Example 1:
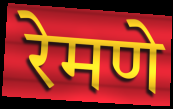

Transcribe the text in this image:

रेमणे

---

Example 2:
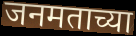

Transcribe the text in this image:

जनमताच्या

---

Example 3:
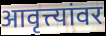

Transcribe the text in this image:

आवृत्त्यांवर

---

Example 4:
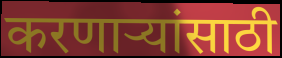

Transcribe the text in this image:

करणार्‍यांसाठी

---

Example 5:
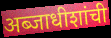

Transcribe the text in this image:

अब्जाधीशांची